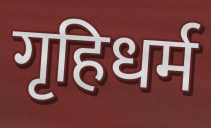
गृहिधर्म